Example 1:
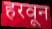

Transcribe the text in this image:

हरवून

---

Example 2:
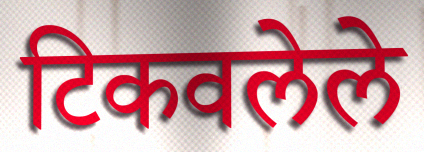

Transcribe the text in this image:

टिकवलेले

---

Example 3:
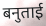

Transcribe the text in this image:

बनुताई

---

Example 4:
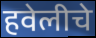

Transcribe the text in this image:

हवेलीचे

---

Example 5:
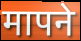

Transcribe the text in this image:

मापने